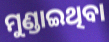
ମୁଣ୍ଡାଇଥିବା